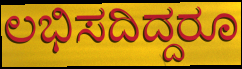
ಲಭಿಸದಿದ್ದರೂ